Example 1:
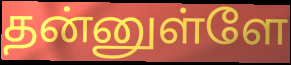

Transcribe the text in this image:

தன்னுள்ளே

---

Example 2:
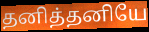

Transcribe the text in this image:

தனித்தனியே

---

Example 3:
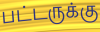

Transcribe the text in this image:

பட்டருக்கு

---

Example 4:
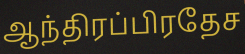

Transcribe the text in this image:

ஆந்திரப்பிரதேச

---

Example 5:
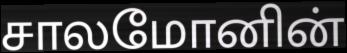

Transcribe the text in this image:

சாலமோனின்